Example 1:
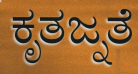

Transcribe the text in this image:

ಕೃತಜ್ನತೆ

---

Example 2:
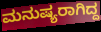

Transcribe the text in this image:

ಮನುಷ್ಯರಾಗಿದ್ದ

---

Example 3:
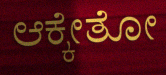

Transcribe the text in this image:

ಆಕ್ಕೇತೋ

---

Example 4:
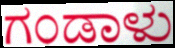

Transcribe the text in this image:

ಗಂಡಾಳು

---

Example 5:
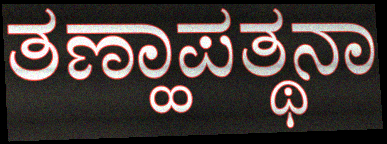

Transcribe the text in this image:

ತಣ್ಹಾಪತ್ಥನಾ